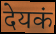
देयकं